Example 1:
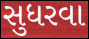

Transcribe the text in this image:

સુધરવા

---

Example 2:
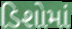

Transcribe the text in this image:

ડિશોમાં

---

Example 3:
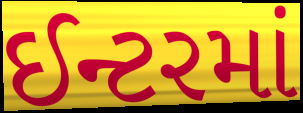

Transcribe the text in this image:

ઈન્ટરમાં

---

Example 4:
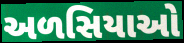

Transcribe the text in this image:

અળસિયાઓ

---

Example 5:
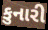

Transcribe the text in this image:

કુનારી